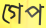
গেপ